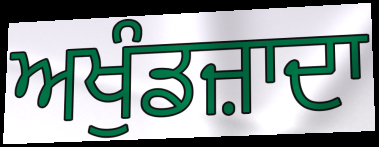
ਅਖੁੰਡਜ਼ਾਦਾ